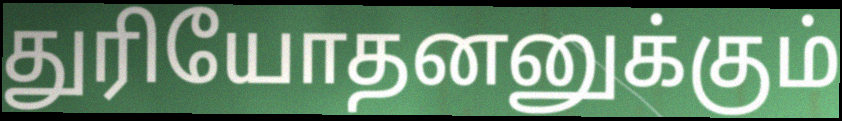
துரியோதனனுக்கும்